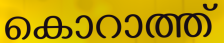
കൊറാത്ത്